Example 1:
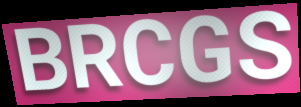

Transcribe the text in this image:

BRCGS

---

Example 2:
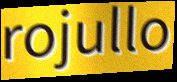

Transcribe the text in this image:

rojullo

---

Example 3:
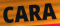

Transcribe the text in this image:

CARA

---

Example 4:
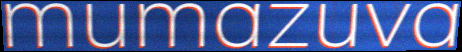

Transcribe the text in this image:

mumazuva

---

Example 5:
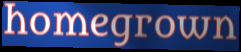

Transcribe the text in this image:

homegrown